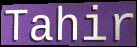
Tahir